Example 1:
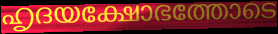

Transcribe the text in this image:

ഹൃദയക്ഷോഭത്തോടെ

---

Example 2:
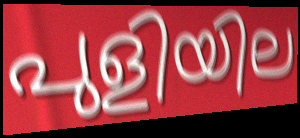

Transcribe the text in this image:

പുളിയില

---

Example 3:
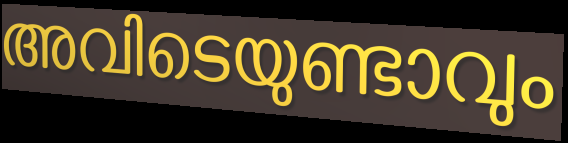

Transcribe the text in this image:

അവിടെയുണ്ടാവും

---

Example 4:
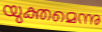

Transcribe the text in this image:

യുക്തമെന്നു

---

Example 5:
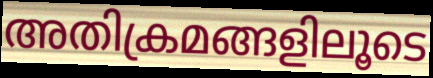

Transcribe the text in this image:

അതിക്രമങ്ങളിലൂടെ